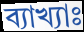
ব্যাখ্যাঃ